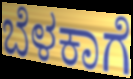
ಬೆಳಕಾಗೆ